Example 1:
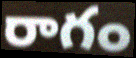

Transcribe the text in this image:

రాగం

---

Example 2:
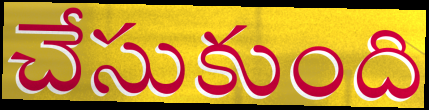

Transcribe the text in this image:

చేసుకుంది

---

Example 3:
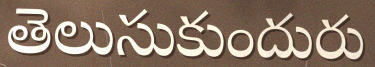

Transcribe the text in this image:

తెలుసుకుందురు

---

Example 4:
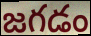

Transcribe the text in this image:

జగడం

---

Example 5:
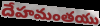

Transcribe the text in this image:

దేహమంతయు